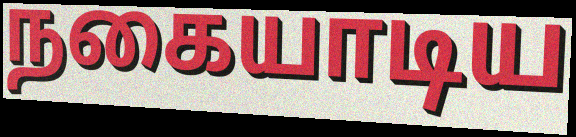
நகையாடிய